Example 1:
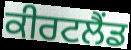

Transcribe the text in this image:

ਕੀਰਟਲੈਂਡ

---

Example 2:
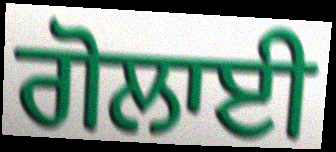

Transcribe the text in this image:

ਗੋਲਾਈ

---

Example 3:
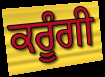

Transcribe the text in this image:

ਕਰੂੰਗੀ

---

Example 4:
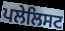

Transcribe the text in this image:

ਪਲੇਲਿਸਟ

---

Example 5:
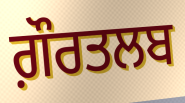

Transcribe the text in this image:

ਗ਼ੌਰਤਲਬ